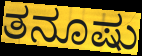
ತನೂಷು